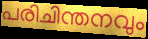
പരിചിന്തനവും